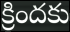
క్రిందకు